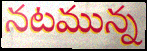
నటమున్న